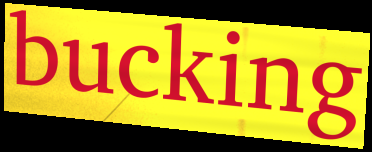
bucking